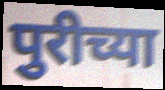
पुरीच्या